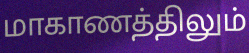
மாகாணத்திலும்